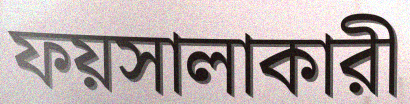
ফয়সালাকারী